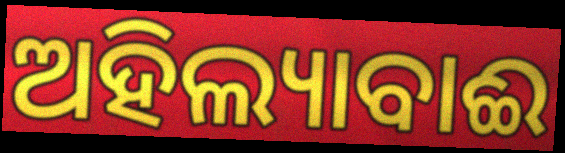
ଅହିଲ୍ୟାବାଈ